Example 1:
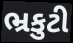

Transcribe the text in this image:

ભ્રકુટી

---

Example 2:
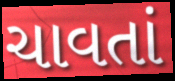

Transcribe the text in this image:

ચાવતાં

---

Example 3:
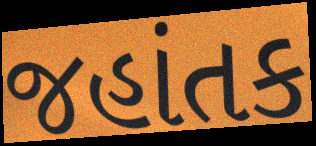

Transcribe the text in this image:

જહાંતક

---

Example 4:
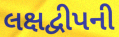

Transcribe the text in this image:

લક્ષદ્વીપની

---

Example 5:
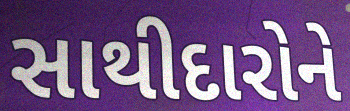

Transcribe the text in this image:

સાથીદારોને